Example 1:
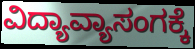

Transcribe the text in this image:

ವಿದ್ಯಾವ್ಯಾಸಂಗಕ್ಕೆ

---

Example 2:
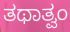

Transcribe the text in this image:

ತಥಾತ್ವಂ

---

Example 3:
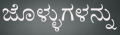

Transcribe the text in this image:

ಜೊಳ್ಳುಗಳನ್ನು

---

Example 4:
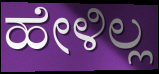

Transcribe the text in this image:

ಹೇಳಿಲ್ಲ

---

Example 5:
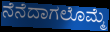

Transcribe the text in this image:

ನೆನೆದಾಗಲೊಮ್ಮೆ